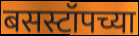
बसस्टॉपच्या